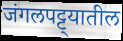
जंगलपट्ट्यातील